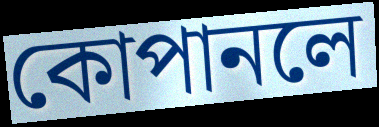
কোপানলে